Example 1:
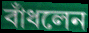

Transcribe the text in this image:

বাঁধলেন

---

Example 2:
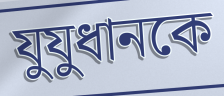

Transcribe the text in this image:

যুযুধানকে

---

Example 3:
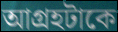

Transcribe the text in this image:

আগ্রহটাকে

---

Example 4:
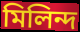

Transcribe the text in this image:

মিলিন্দ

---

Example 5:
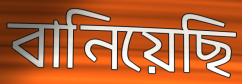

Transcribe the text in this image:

বানিয়েছি